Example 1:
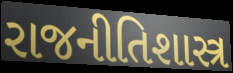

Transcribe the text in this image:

રાજનીતિશાસ્ત્ર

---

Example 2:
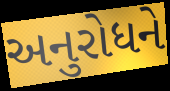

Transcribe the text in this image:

અનુરોધને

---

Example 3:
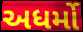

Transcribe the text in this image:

અધર્મો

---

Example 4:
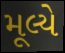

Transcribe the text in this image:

મૂલ્યે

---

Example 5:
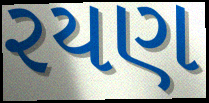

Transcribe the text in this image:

રયણ